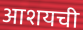
आशयची